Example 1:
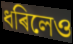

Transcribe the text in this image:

ধৰিলেও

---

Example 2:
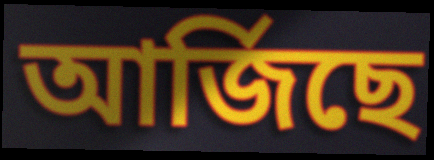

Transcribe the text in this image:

আৰ্জিছে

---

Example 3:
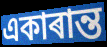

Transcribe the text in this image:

একাৰান্ত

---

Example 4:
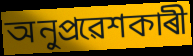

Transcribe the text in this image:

অনুপ্ৰৱেশকাৰী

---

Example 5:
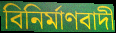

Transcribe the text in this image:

বিনিৰ্মাণবাদী